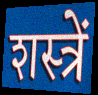
शस्त्रें